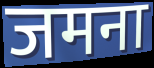
जमना